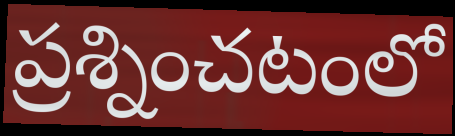
ప్రశ్నించటంలో